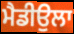
ਮੈਡੀਉਲਾ